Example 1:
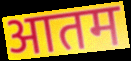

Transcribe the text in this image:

आतम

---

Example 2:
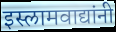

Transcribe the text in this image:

इस्लामवाद्यांनी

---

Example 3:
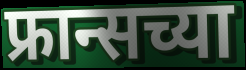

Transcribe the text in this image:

फ्रान्सच्या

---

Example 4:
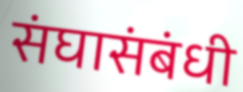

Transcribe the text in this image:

संघासंबंधी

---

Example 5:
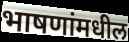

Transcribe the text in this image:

भाषणांमधील